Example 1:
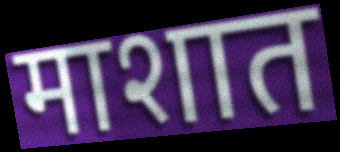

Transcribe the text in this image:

माशात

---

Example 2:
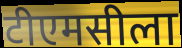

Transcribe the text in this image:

टीएमसीला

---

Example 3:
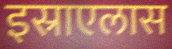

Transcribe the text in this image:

इस्राएलास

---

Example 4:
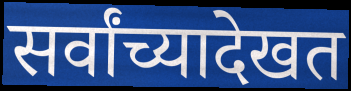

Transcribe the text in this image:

सर्वांच्यादेखत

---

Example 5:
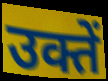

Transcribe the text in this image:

उक्तें